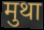
मुथा